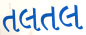
તલતલ